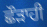
ਛੌੜਾਹੀ